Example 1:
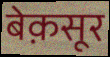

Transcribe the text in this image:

बेक़सूर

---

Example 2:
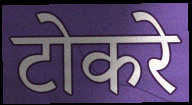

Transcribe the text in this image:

टोकरे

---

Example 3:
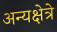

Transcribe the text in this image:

अन्यक्षेत्रे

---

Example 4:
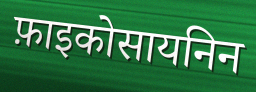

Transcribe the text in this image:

फ़ाइकोसायनिन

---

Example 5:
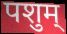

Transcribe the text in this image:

पशुम्